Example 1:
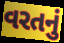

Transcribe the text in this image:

વરતનું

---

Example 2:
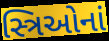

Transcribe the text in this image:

સ્ત્રિઓનાં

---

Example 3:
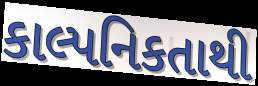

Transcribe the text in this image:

કાલ્પનિકતાથી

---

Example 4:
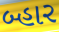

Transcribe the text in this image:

બ્હાર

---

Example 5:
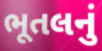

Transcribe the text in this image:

ભૂતલનું